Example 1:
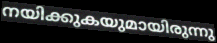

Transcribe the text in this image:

നയിക്കുകയുമായിരുന്നു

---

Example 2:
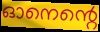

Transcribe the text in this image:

ഓനെന്റെ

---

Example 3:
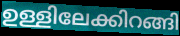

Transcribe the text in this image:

ഉള്ളിലേക്കിറങ്ങി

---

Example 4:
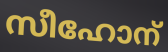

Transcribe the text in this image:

സീഹോന്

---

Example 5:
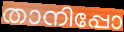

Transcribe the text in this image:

താനിപ്പോ